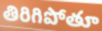
తిరిగిపోతూ